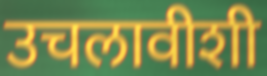
उचलावीशी